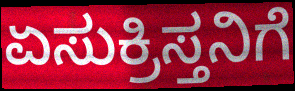
ಏಸುಕ್ರಿಸ್ತನಿಗೆ